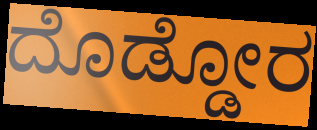
ದೊಡ್ಡೋರ